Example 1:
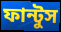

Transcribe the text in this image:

ফান্টুস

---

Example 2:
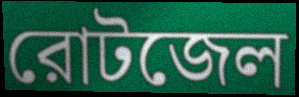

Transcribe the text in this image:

রোটজেল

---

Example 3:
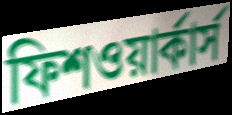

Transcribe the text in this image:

ফিশওয়ার্কার্স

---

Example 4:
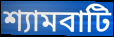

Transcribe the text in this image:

শ্যামবাটি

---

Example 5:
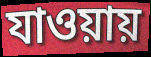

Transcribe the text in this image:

যাওয়ায়